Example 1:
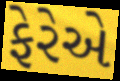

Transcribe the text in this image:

ફેરેએ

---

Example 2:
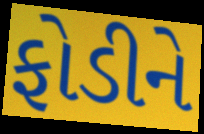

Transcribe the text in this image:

ફોડીને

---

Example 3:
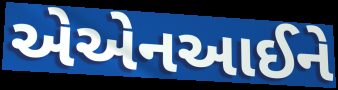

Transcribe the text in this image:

એએનઆઈને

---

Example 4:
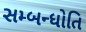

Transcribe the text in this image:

સમ્બન્ધોતિ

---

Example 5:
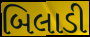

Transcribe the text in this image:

બિલાડી